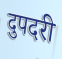
दुपदरी